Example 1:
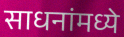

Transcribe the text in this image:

साधनांमध्ये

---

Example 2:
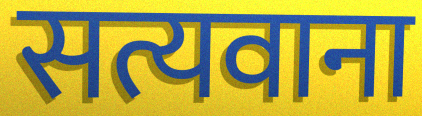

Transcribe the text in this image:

सत्यवाना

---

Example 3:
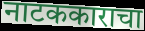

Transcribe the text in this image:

नाटककाराचा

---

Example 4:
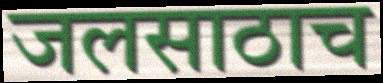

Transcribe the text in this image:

जलसाठाच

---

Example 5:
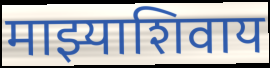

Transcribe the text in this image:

माझ्याशिवाय